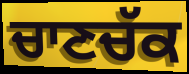
ਚਾਣਚੱਕ